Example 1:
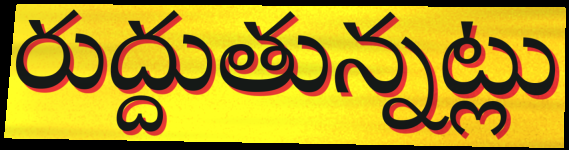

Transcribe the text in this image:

రుద్దుతున్నట్లు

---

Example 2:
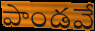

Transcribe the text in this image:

పాండవే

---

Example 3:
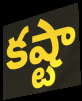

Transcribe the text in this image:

కష్టా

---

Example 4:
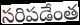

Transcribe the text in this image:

సరిపడేంత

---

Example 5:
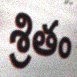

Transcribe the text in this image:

శ్రితం